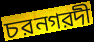
চরনগরদী